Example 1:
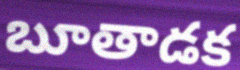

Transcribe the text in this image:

బూతాడక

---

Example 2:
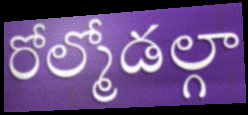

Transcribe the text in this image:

రోల్మోడల్గా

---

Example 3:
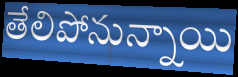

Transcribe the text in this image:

తేలిపోనున్నాయి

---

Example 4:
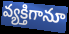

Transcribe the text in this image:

వ్యక్తిగానూ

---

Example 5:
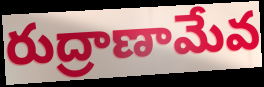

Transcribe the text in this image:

రుద్రాణామేవ